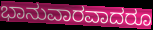
ಭಾನುವಾರವಾದರೂ